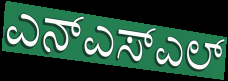
ಎನ್ಎಸ್ಎಲ್